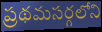
ప్రథమసర్గలోని